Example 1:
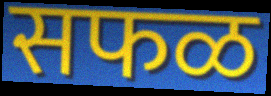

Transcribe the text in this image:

सफळ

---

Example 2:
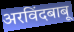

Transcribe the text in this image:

अरविंदबाबू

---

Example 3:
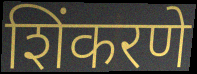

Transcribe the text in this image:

शिंकरणे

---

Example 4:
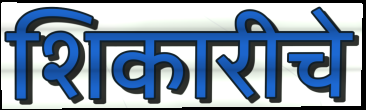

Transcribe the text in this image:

शिकारीचे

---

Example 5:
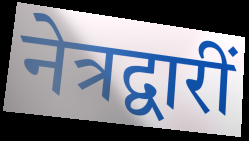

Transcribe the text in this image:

नेत्रद्वारीं